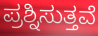
ಪ್ರಶ್ನಿಸುತ್ತವೆ